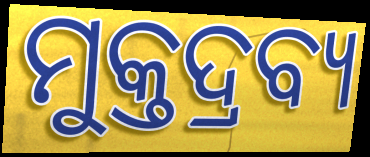
ମୁକ୍ତଦ୍ରବ୍ୟ